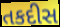
તકદીસ